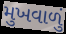
મુખવાળું